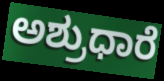
ಅಶ್ರುಧಾರೆ